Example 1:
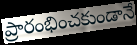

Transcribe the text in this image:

ప్రారంభించకుండానే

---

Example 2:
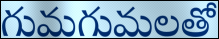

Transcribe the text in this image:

గుమగుమలతో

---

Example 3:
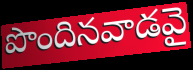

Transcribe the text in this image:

పొందినవాడవై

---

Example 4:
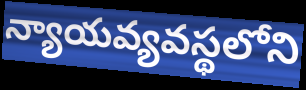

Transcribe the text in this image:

న్యాయవ్యవస్థలోని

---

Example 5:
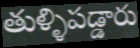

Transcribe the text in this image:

తుళ్ళిపడ్డారు